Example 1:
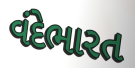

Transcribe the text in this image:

વંદેભારત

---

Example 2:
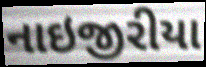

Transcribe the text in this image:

નાઇજીરીયા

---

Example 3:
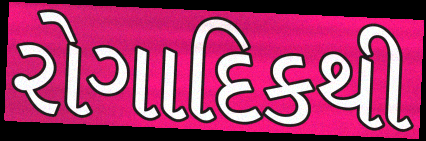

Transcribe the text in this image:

રોગાદિકથી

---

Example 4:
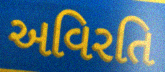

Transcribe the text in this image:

અવિરતિ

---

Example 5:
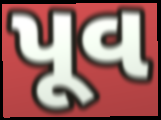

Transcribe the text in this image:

પૂવ